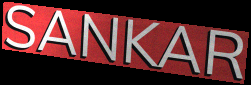
SANKAR